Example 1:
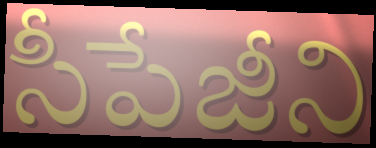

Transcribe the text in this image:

సీపేజీని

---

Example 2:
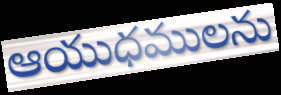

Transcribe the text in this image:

ఆయుధములను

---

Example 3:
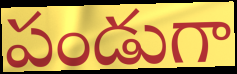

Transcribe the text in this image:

పండుగా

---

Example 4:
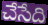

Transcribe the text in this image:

చేసేది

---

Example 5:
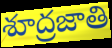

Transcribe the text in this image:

శూద్రజాతి